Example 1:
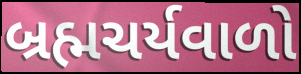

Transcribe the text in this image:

બ્રહ્મચર્યવાળો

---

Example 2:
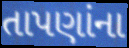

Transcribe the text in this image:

તાપણાંના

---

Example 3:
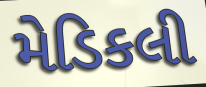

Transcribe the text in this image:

મેડિકલી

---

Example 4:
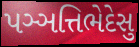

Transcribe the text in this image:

પઞ્ઞત્તિભેદેસુ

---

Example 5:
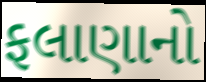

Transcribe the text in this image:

ફલાણાનો